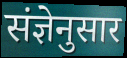
संज्ञेनुसार